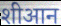
शीआन